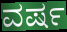
ವರ್ಷ